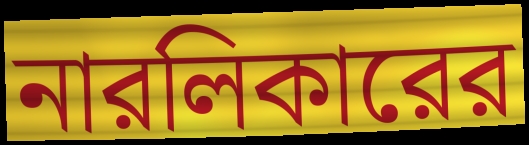
নারলিকারের